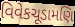
વિવેકચૂડામણિ